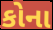
કોના